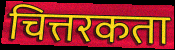
चित्तरकता